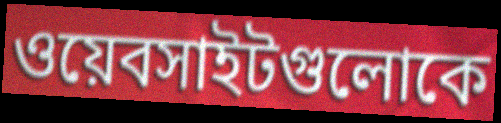
ওয়েবসাইটগুলোকে